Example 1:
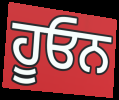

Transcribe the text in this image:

ਹੂਓਨ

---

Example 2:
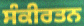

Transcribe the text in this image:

ਸੰਕੀਰਤਨ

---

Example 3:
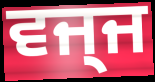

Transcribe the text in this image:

ਵਜ੍ਜ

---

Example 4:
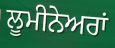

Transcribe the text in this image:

ਲੂਮੀਨੇਅਰਾਂ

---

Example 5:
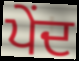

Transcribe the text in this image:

ਪੇਂਦ